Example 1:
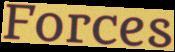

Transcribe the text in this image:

Forces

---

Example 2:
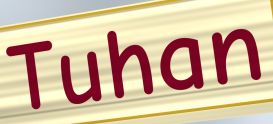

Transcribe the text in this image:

Tuhan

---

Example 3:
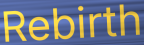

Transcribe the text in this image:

Rebirth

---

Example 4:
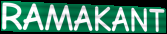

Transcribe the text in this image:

RAMAKANT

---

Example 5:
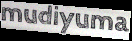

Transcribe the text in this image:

mudiyuma